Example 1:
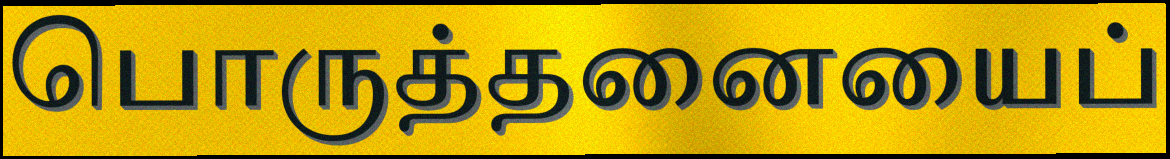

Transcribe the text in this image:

பொருத்தனையைப்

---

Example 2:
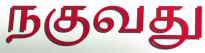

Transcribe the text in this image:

நகுவது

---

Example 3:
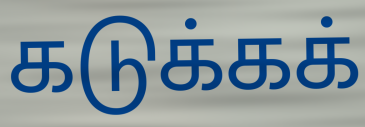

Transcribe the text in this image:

கடுக்கக்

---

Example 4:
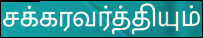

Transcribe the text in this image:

சக்கரவர்த்தியும்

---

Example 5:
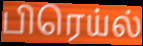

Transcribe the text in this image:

பிரெய்ல்